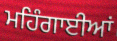
ਮਹਿੰਗਾਈਆਂ